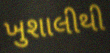
ખુશાલીથી